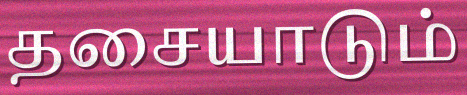
தசையாடும்